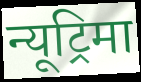
न्यूट्रिमा